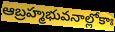
ఆబ్రహ్మభువనాల్లోకాః